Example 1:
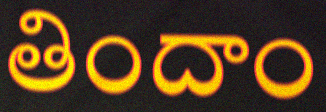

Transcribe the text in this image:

తిందాం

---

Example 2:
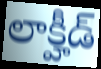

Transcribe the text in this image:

లాక్హీడ్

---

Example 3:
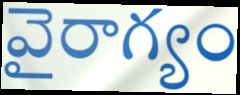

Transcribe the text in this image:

వైరాగ్యం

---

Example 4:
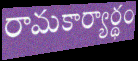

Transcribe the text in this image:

రామకార్యార్థం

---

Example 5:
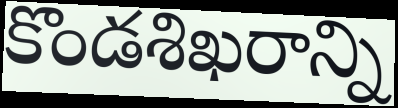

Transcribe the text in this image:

కొండశిఖరాన్ని